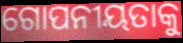
ଗୋପନୀୟତାକୁ